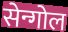
सेन्गोल